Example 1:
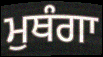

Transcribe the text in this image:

ਮੁਥੰਗਾ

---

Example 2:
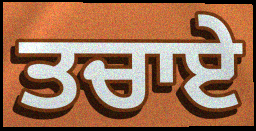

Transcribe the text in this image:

ਤਚਾਏ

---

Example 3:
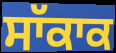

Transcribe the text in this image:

ਸਾੱਕਾਕ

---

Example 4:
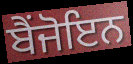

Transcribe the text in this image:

ਬੈਂਜੋਇਨ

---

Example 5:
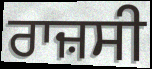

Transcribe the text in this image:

ਰਾਜ਼ਸੀ